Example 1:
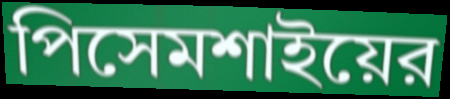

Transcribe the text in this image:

পিসেমশাইয়ের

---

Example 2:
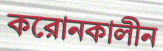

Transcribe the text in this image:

করোনকালীন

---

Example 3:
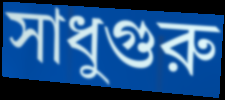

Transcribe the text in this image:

সাধুগুরু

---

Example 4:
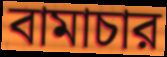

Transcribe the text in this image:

বামাচার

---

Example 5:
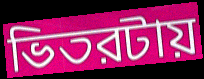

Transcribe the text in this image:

ভিতরটায়